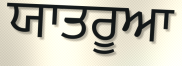
ਯਾਤਰੂਆ